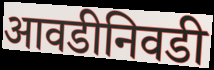
आवडीनिवडी